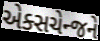
એક્સચેન્જને